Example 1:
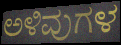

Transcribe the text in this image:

ಅಳಿವುಗಳ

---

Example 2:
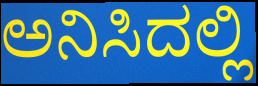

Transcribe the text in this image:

ಅನಿಸಿದಲ್ಲಿ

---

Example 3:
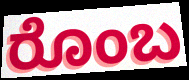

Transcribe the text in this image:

ರೊಂಬ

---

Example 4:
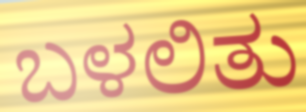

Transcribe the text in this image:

ಬಳಲಿತು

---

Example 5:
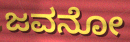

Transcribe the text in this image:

ಜವನೋ